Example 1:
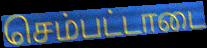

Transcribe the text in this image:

செம்பட்டாடை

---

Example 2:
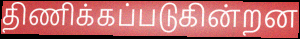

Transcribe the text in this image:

திணிக்கப்படுகின்றன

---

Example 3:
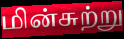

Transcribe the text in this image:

மின்சுற்று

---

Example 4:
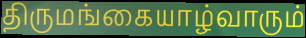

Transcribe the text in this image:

திருமங்கையாழ்வாரும்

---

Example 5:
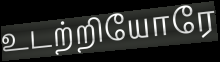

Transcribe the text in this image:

உடற்றியோரே